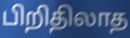
பிறிதிலாத